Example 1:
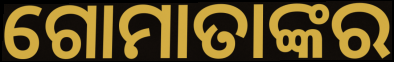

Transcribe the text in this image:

ଗୋମାତାଙ୍କର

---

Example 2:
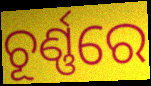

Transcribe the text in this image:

ଚୂର୍ଣ୍ଣରେ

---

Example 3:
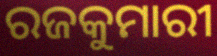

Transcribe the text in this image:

ରଜକୁମାରୀ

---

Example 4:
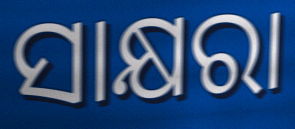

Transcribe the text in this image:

ସାକ୍ଷରା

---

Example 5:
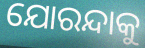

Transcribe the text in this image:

ଯୋରନ୍ଦାକୁ